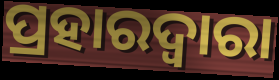
ପ୍ରହାରଦ୍ଵାରା